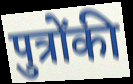
पुत्रोंकी